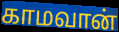
காமவான்